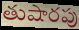
తుషారపు